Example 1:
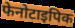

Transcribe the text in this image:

फेनोटाइपिक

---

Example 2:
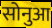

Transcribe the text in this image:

सोनुआ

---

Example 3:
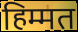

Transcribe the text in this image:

हिम्‍मत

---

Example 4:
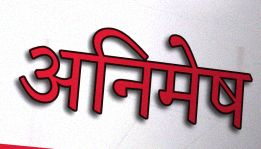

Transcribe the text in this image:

अनिमेष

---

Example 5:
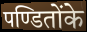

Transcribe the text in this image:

पण्डितोंके